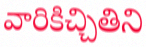
వారికిచ్చితిని